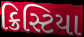
ક્રિસ્ટિયા